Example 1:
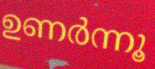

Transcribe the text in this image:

ഉണർന്നൂ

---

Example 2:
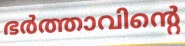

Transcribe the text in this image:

ഭർത്താവിന്റെ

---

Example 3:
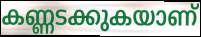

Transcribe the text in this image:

കണ്ണടക്കുകയാണ്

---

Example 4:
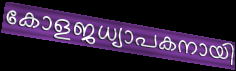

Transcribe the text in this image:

കോളജധ്യാപകനായി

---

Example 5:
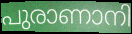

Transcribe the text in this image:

പുരാണാനി